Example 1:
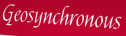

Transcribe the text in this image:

Geosynchronous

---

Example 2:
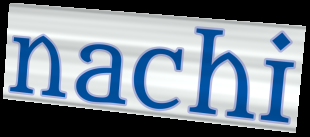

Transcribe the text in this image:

nachi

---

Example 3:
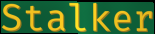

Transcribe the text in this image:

Stalker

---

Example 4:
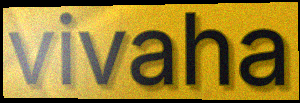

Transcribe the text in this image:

vivaha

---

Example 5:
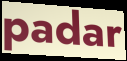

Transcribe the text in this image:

padar